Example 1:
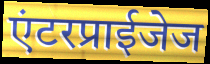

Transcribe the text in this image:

एंटरप्राईजेज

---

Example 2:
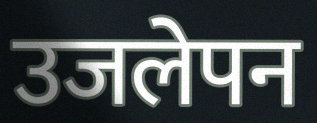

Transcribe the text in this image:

उजलेपन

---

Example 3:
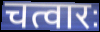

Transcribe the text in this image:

चत्वारः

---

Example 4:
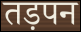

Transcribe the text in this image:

तड़पन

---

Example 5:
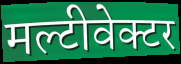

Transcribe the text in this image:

मल्टीवेक्टर